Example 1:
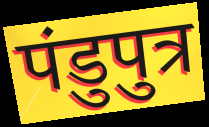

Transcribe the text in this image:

पंडुपुत्र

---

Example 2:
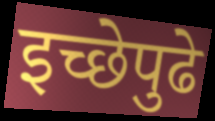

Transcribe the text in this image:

इच्छेपुढे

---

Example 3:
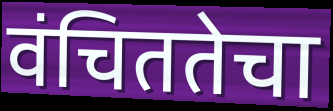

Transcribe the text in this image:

वंचिततेचा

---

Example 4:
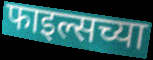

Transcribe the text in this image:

फाइल्सच्या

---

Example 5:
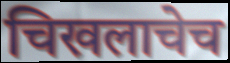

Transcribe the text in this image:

चिखलाचेच